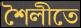
শৈলীতে